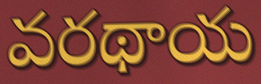
వరథాయ